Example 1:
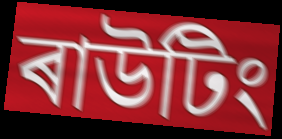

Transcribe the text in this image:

ৰাউটিং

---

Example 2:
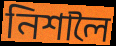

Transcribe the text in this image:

নিশালৈ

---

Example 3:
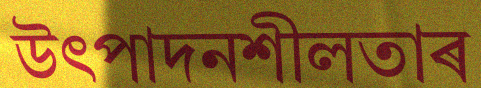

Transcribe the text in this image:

উৎপাদনশীলতাৰ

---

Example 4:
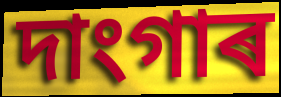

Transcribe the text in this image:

দাংগাৰ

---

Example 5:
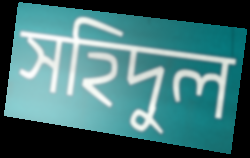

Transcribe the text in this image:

সহিদুল